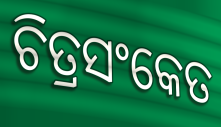
ଚିତ୍ରସଂକେତ